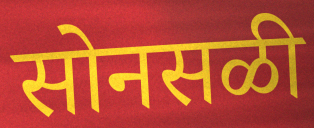
सोनसळी